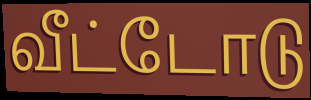
வீட்டோடு